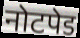
नोटपेड